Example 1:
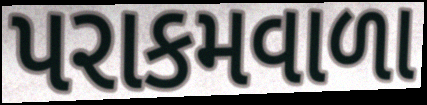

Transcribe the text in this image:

પરાકમવાળા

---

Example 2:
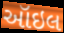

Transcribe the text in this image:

ઑઇલ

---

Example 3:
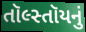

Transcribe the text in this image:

તૉલ્સ્તૉયનું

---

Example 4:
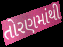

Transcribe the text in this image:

તોરણમાંથી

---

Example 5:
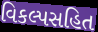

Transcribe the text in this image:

વિકલ્પસહિત